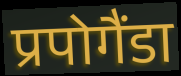
प्रपोगैंडा